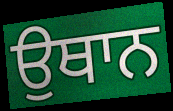
ਉਥਾਨ